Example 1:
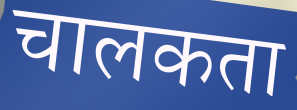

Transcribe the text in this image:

चालकता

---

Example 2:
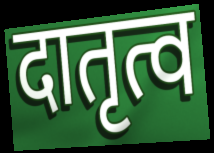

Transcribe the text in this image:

दातृत्व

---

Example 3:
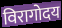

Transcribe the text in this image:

विरागोदय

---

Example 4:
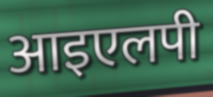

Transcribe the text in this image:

आइएलपी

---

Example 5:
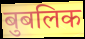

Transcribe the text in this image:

बुबलिक